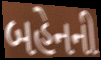
બહેનની